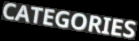
CATEGORIES